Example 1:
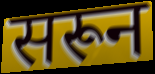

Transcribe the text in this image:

सरून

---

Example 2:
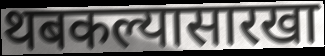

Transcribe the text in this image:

थबकल्यासारखा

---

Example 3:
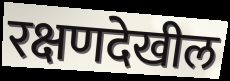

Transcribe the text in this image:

रक्षणदेखील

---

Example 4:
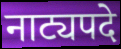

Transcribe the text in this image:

नाट्यपदे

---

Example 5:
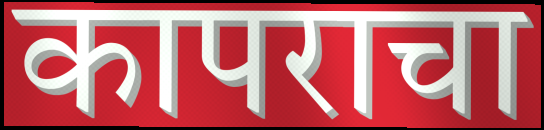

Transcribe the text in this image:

कापराचा